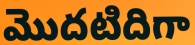
మొదటిదిగా